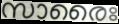
സാരൈഃ